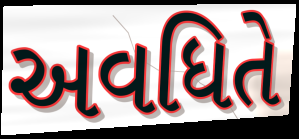
અવધિતે